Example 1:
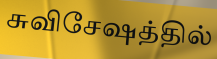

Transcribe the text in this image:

சுவிசேஷத்தில்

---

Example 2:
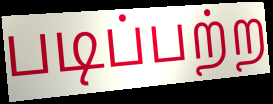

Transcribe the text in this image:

படிப்பற்ற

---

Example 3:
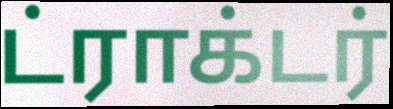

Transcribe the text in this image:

ட்ராக்டர்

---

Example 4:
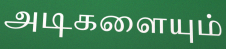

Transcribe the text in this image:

அடிகளையும்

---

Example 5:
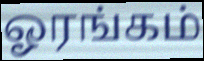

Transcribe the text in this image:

ஓரங்கம்